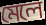
মেলে